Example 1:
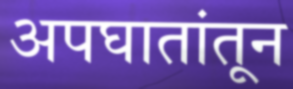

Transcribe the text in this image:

अपघातांतून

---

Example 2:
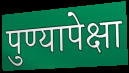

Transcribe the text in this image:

पुण्यापेक्षा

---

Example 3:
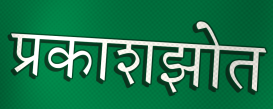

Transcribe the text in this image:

प्रकाशझोत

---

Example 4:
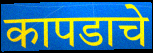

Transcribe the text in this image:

कापडाचे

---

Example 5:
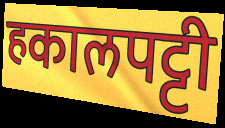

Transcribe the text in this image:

हकालपट्टी